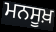
ਮਨਸੂਖ਼